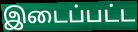
இடைப்பட்ட